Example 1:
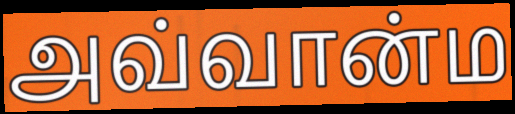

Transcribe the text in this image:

அவ்வான்ம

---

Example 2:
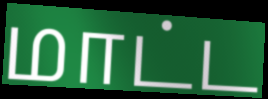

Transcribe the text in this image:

மாட்ட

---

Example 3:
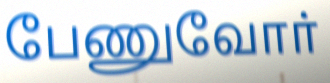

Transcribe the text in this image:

பேணுவோர்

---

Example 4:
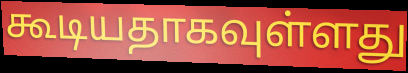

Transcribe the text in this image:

கூடியதாகவுள்ளது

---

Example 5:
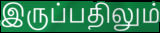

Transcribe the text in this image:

இருப்பதிலும்